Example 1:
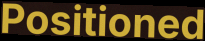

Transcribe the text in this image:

Positioned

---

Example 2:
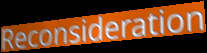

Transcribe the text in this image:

Reconsideration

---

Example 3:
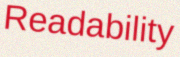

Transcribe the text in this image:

Readability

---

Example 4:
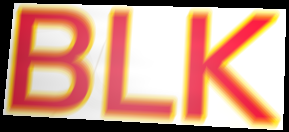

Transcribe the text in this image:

BLK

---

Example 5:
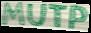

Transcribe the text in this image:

MUTP